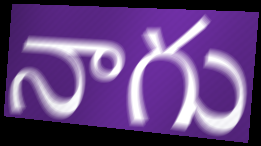
నాగు